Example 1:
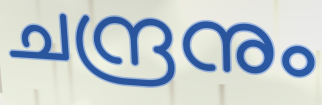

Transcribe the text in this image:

ചന്ദ്രനും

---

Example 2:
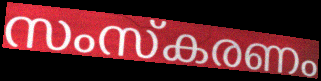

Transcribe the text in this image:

സംസ്‌കരണം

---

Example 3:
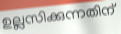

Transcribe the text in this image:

ഉല്ലസിക്കുന്നതിന്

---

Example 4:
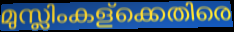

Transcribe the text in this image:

മുസ്ലിംകള്ക്കെതിരെ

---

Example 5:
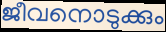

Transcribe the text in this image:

ജീവനൊടുക്കും